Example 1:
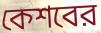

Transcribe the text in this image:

কেশবের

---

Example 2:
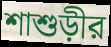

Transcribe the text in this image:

শাশুড়ীর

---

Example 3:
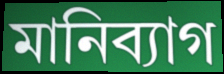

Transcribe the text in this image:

মানিব্যাগ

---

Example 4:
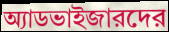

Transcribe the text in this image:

অ্যাডভাইজারদের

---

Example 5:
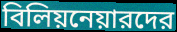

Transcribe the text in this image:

বিলিয়নেয়ারদের